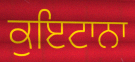
ਕੁਇਟਾਨਾ